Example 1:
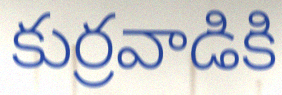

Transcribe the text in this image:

కుర్రవాడికి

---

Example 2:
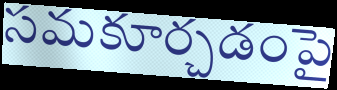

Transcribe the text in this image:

సమకూర్చడంపై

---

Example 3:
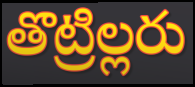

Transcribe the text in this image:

తొట్రిల్లరు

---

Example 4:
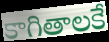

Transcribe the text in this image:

కాగితాలకే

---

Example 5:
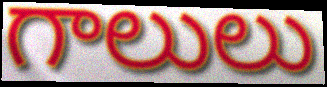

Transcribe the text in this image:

గాలులు